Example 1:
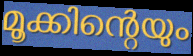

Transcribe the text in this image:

മൂക്കിന്റെയും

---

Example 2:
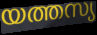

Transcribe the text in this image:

യത്തസ്യ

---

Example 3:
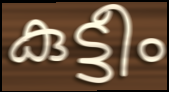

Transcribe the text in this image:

കുട്ടീം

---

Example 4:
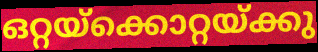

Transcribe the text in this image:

ഒറ്റയ്ക്കൊറ്റയ്ക്കു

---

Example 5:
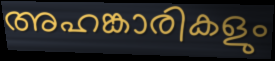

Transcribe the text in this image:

അഹങ്കാരികളും